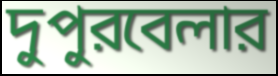
দুপুরবেলার